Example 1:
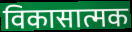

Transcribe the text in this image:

विकासात्मक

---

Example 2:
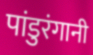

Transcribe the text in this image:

पांडुरंगानी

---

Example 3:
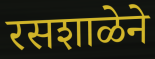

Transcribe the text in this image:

रसशाळेने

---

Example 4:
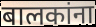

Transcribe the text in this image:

बालकांना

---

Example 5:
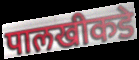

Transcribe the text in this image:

पालखीकडे